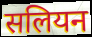
सलियन